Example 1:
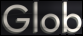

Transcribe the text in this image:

Glob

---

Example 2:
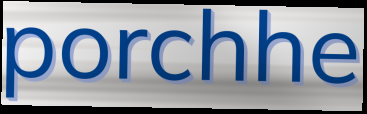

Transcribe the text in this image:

porchhe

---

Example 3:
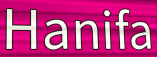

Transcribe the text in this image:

Hanifa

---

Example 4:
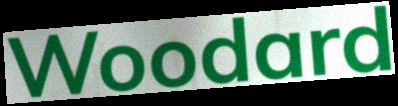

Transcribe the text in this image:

Woodard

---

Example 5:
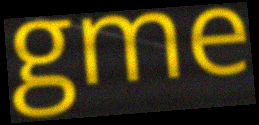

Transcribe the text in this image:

gme